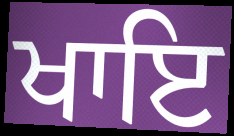
ਖਾਇ